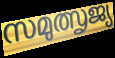
സമുത്സൃജ്യ